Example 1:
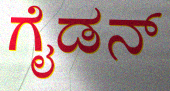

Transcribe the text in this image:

ಗೈಡನ್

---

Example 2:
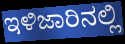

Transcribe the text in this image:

ಇಳಿಜಾರಿನಲ್ಲಿ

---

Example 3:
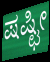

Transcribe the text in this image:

ಷಷ್ಟೀ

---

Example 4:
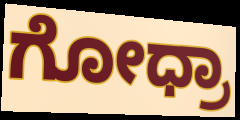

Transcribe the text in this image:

ಗೋಧ್ರಾ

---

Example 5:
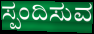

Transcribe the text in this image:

ಸ್ಪಂದಿಸುವ